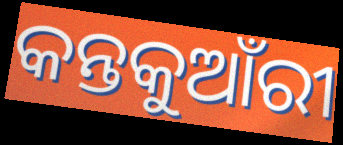
କନ୍ତକୁଆଁରୀ